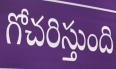
గోచరిస్తుంది